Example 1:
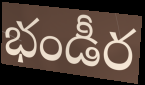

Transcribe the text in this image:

భండీర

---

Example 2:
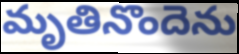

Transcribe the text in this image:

మృతినొందెను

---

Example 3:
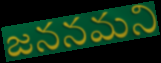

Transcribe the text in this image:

జననమని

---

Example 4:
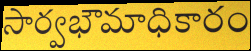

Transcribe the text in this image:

సార్వభౌమాధికారం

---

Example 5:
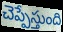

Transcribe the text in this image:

చెప్పేస్తుంది